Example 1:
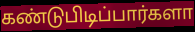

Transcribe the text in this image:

கண்டுபிடிப்பார்களா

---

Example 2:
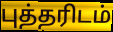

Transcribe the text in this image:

புத்தரிடம்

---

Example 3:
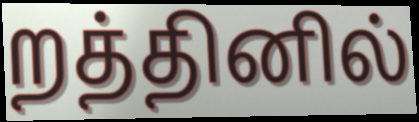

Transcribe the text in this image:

றத்தினில்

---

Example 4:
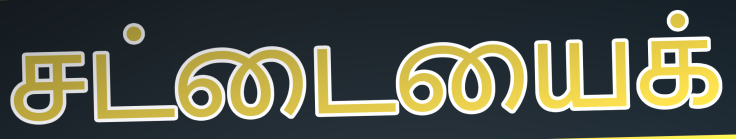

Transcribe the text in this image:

சட்டையைக்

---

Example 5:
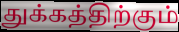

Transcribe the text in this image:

துக்கத்திற்கும்